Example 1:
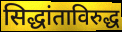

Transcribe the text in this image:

सिद्धांताविरुद्ध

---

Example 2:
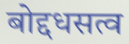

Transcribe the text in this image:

बोद्दधसत्व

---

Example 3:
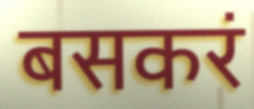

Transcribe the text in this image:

बसकरं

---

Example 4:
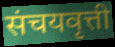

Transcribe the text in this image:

संचयवृत्ती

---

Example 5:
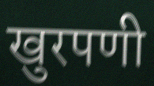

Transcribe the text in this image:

खुरपणी